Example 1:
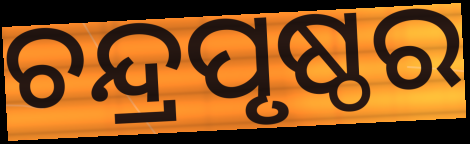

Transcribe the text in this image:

ଚନ୍ଦ୍ରପୃଷ୍ଠର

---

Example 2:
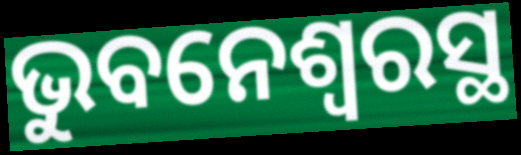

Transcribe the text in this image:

ଭୁବନେଶ୍ଵରସ୍ଥ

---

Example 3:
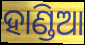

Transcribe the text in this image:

ହାଣ୍ଡିଆ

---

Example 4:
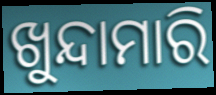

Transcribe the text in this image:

ଖୁନ୍ଦାମାରି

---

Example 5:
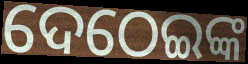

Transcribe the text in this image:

ଦେଠେଇଙ୍କ